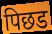
पिछड